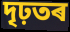
দৃঢ়তৰ